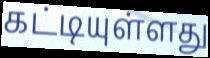
கட்டியுள்ளது